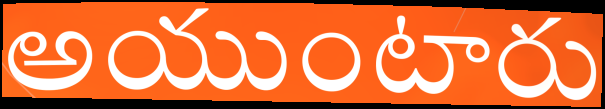
అయుంటారు